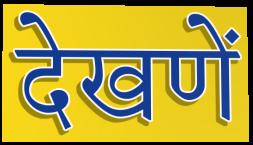
देखणें